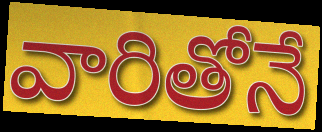
వారితోనే